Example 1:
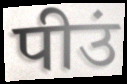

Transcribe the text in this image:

पीउं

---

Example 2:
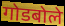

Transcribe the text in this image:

गोडबोले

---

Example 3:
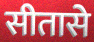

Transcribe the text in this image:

सीतासे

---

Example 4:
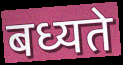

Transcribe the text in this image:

बध्यते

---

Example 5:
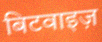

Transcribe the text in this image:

बिटवाइज़